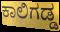
ಕಾಲಿಗಡ್ಡ